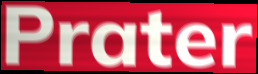
Prater